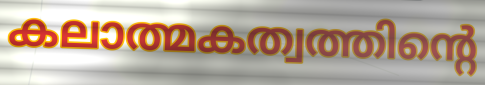
കലാത്മകത്വത്തിന്റെ